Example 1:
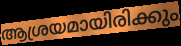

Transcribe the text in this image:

ആശ്രയമായിരിക്കും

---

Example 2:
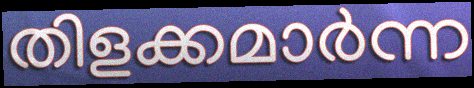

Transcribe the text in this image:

തിളക്കമാർന്ന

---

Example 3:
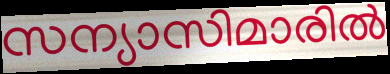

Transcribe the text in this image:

സന്യാസിമാരിൽ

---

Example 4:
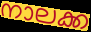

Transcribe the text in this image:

നാലക്ക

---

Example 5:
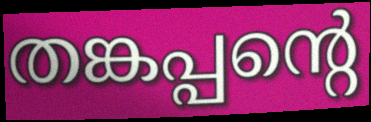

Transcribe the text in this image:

തങ്കപ്പന്റെ